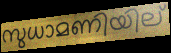
സുധാമണിയില്